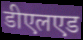
डीएलएड